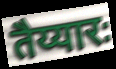
तैय्यारः